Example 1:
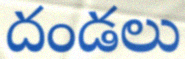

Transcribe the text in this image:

దండలు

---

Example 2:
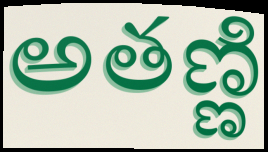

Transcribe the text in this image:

అతణ్ణి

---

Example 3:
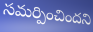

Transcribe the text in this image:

సమర్పించిందని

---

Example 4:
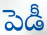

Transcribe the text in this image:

పెడీ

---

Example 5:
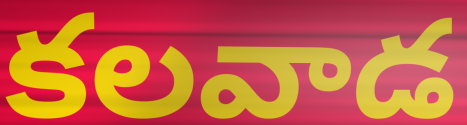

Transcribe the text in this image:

కలవాడ